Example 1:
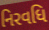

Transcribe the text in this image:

નિરવધિ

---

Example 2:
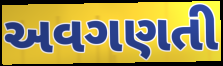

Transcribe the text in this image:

અવગણતી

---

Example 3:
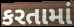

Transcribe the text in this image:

કરતામાં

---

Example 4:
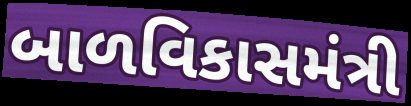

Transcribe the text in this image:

બાળવિકાસમંત્રી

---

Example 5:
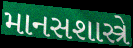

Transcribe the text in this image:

માનસશાસ્ત્રે